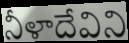
నీళాదేవిని